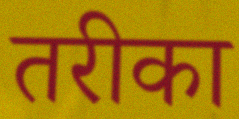
तरीका